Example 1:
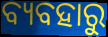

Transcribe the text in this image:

ବ୍ୟବହାରୁ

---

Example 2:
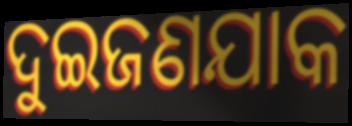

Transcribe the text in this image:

ଦୁଇଜଣଯାକ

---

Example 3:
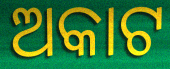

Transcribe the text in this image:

ଅକାଟ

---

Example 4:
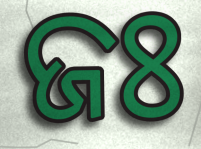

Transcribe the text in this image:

ଜଃ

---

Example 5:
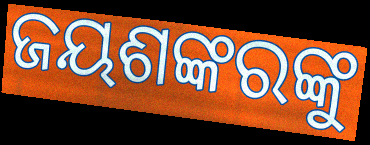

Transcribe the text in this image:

ଜୟଶଙ୍କରଙ୍କୁ